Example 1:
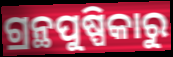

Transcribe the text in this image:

ଗ୍ରନ୍ଥପୁଷ୍ପିକାରୁ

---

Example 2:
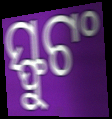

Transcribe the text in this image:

ସ୍ଫୁଟଂ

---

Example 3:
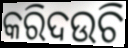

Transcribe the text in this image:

କରିଦଉଚି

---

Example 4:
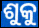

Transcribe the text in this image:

ଶୁକୁ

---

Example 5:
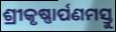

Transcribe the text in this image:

ଶ୍ରୀକୃଷ୍ଣାର୍ପଣମସ୍ତୁ